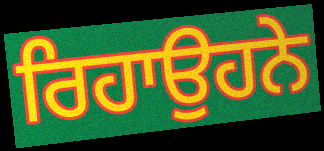
ਰਿਹਾਉਹਨੇ